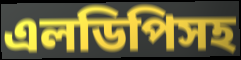
এলডিপিসহ